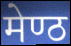
मेण्ठ